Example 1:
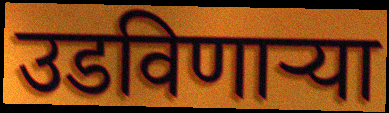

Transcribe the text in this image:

उडविणार्‍या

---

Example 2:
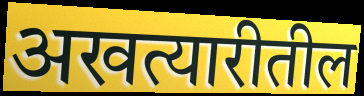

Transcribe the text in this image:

अखत्यारीतील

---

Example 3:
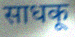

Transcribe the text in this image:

साधकू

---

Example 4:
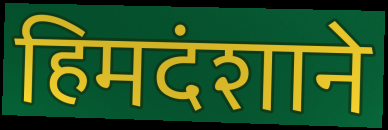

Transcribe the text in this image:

हिमदंशाने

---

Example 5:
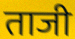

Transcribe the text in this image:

ताजी